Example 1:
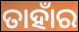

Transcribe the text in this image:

ତାହାଁର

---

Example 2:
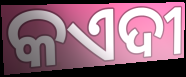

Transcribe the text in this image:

କଏଦୀ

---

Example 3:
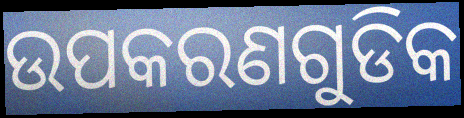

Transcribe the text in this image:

ଉପକରଣଗୁଡିକ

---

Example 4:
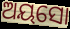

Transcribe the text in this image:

ଅୟସୋ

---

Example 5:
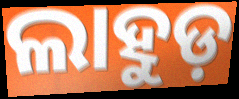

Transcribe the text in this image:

ଲାହୁଡ଼